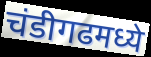
चंडीगढमध्ये